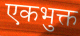
एकभुक्त